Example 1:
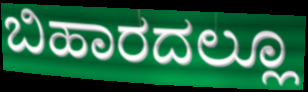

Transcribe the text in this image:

ಬಿಹಾರದಲ್ಲೂ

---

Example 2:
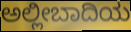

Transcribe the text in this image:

ಅಲ್ಲೀಬಾದಿಯ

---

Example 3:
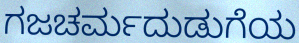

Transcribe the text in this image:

ಗಜಚರ್ಮದುಡುಗೆಯ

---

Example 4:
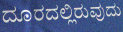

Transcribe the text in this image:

ದೂರದಲ್ಲಿರುವುದು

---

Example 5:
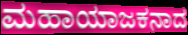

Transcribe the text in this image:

ಮಹಾಯಾಜಕನಾದ